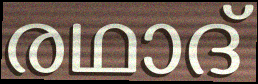
രഥാദ്